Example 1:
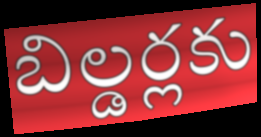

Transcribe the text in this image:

బిల్డర్లకు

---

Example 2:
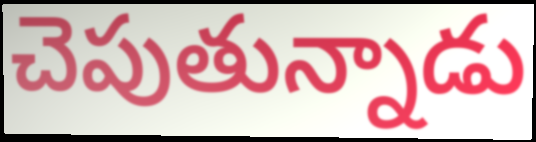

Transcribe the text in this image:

చెపుతున్నాడు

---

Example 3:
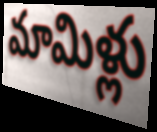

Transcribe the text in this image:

మామిళ్లు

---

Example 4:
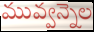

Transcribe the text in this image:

మువ్వన్నెల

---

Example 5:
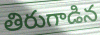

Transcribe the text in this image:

తిరుగాడిన